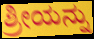
ಶ್ರೀಯನ್ನು